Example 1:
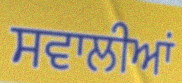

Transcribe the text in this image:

ਸਵਾਲੀਆਂ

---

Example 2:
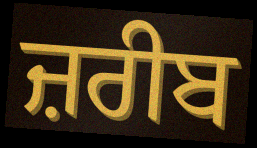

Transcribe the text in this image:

ਜ਼ਰੀਬ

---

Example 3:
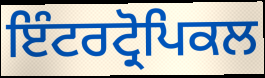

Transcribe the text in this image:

ਇੰਟਰਟ੍ਰੋਪਿਕਲ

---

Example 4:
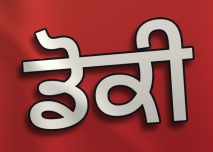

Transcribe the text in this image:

ਡੋਕੀ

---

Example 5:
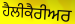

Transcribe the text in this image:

ਹੈਲੀਕੈਰੀਅਰ